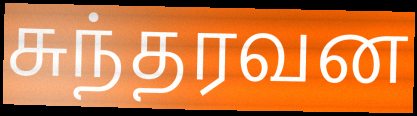
சுந்தரவன